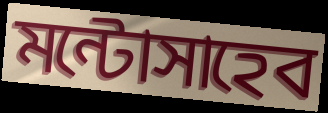
মন্টোসাহেব